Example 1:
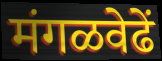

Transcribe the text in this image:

मंगळवेढें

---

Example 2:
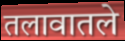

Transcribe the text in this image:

तलावातले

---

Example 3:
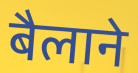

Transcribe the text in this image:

बैलाने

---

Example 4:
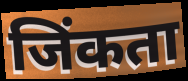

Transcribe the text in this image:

जिंकता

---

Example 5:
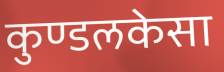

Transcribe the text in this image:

कुण्डलकेसा